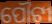
ପୌଟୀ